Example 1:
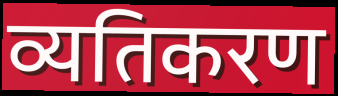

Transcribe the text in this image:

व्यतिकरण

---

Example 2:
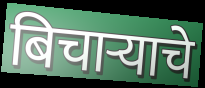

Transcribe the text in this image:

बिचाऱ्याचे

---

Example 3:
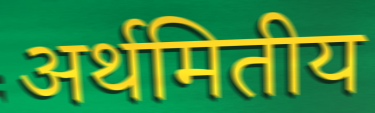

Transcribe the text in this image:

अर्थमितीय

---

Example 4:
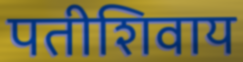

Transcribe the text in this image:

पतीशिवाय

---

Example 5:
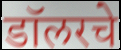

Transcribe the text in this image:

डॉलरचे